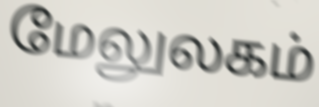
மேலுலகம்